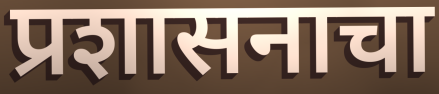
प्रशासनाचा